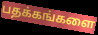
பதக்கங்களை